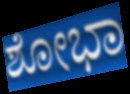
ಶೋಭಾ